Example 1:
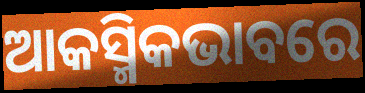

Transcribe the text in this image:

ଆକସ୍ମିକଭାବରେ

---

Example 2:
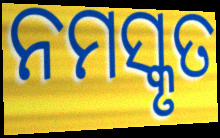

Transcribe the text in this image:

ନମସ୍କୃତ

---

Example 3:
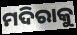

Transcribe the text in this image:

ମଦିରାକୁ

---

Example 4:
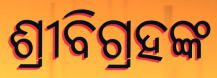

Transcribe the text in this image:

ଶ୍ରୀବିଗ୍ରହଙ୍କ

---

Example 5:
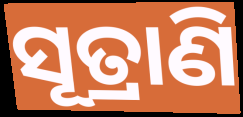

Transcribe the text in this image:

ସୂତ୍ରାଣି